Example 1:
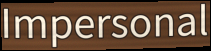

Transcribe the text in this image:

Impersonal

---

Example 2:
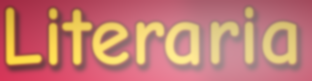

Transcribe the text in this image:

Literaria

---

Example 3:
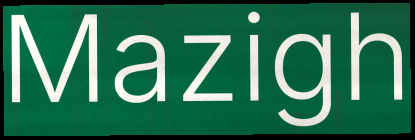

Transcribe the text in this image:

Mazigh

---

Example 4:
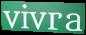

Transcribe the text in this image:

vivra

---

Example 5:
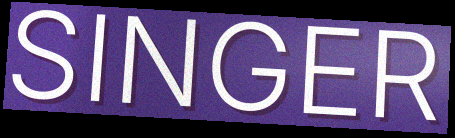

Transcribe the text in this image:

SINGER